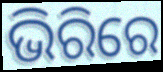
ଭିରିରେ